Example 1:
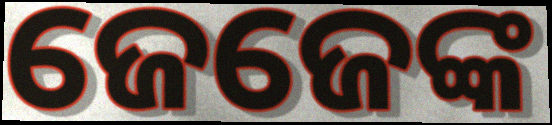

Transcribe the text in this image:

ଜେଜେଙ୍କ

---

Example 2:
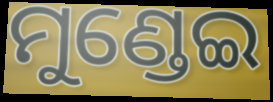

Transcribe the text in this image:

ମୁଣ୍ଡେଇ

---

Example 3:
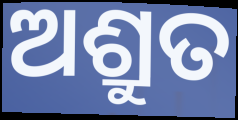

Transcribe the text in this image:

ଅଶ୍ରୁତ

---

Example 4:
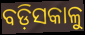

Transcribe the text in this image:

ବଡ଼ିସକାଳୁ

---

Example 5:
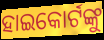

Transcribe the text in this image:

ହାଇକୋର୍ଟଙ୍କୁ